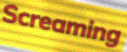
Screaming